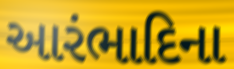
આરંભાદિના